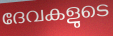
ദേവകളുടെ